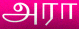
அரா